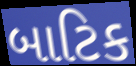
બાટિક